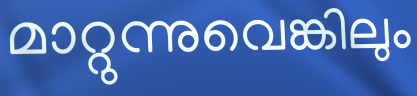
മാറ്റുന്നുവെങ്കിലും